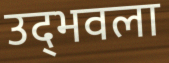
उद्‌भवला